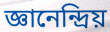
জ্ঞানেন্দ্ৰিয়